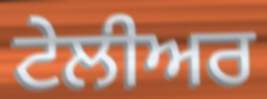
ਟੇਲੀਅਰ